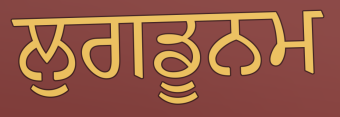
ਲੁਗਡੂਨਮ